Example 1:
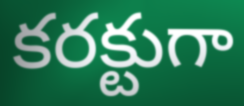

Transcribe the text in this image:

కరక్టుగా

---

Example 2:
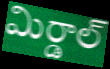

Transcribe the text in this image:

మిర్డాల్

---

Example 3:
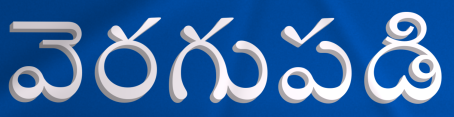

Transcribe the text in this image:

వెరగుపడి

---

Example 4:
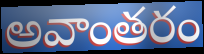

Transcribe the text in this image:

అవాంతరం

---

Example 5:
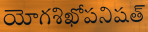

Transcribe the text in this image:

యోగశిఖోపనిషత్